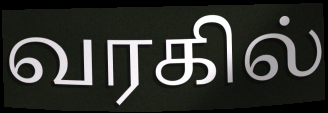
வரகில்